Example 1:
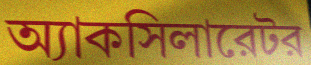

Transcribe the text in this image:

অ্যাকসিলারেটর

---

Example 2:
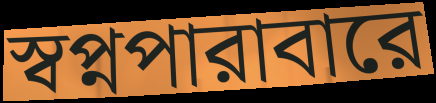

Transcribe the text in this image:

স্বপ্নপারাবারে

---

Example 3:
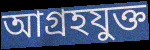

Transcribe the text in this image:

আগ্রহযুক্ত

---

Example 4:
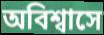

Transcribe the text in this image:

অবিশ্বাসে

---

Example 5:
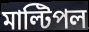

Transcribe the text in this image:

মাল্টিপল